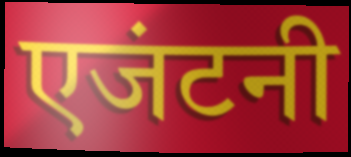
एजंटनी